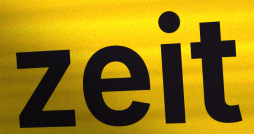
zeit